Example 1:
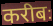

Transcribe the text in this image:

करीबः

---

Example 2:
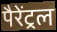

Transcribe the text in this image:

पैरेंट्रल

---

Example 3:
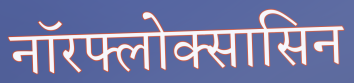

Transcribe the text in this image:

नॉरफ्लोक्सासिन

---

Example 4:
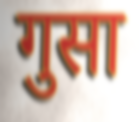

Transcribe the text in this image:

गुसा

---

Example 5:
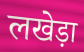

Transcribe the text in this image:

लखेड़ा